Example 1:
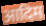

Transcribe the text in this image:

आदिम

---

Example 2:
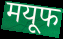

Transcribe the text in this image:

मयूफ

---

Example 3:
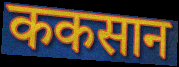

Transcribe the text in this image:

ककसान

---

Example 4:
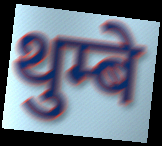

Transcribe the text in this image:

थुम्बे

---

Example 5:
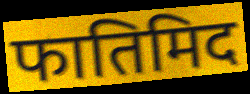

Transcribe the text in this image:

फातिमिद